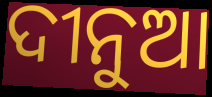
ଦୀନୁଆ